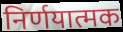
निर्णयात्मक